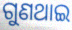
ଗୁଣଥାଇ